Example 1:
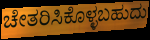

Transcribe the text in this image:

ಚೇತರಿಸಿಕೊಳ್ಳಬಹುದು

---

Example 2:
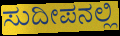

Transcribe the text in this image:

ಸುದೀಪನಲ್ಲಿ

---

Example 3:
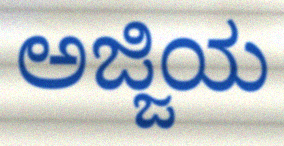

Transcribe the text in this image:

ಅಜ್ಜಿಯ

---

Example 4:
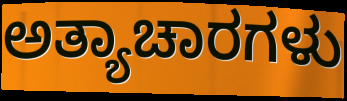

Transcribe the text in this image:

ಅತ್ಯಾಚಾರಗಳು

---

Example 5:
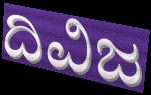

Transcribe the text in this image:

ದಿವಿಜ